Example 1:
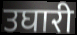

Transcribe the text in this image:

उघारी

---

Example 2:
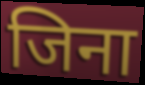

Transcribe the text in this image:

जिना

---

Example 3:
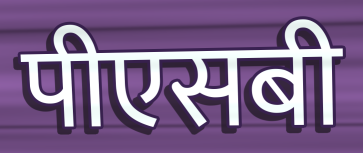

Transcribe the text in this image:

पीएसबी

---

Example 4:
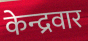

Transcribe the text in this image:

केन्‍द्रवार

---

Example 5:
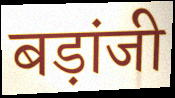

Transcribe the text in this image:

बड़ांजी